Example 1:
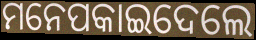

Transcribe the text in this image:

ମନେପକାଇଦେଲେ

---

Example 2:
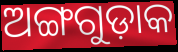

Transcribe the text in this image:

ଅଙ୍ଗଗୁଡ଼ାକ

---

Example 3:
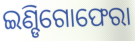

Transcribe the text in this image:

ଇଣ୍ଡିଗୋଫେରା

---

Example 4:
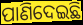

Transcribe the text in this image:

ପାଣିଦେଇଛି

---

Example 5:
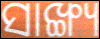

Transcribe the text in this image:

ସାଙ୍ଖ୍ୟ